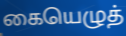
கையெழுத்